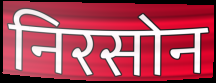
निरसोन